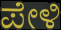
ಪೇಳಿ